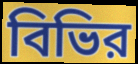
বিভির